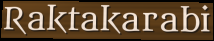
Raktakarabi